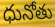
ధునోతు